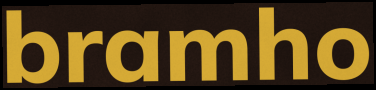
bramho